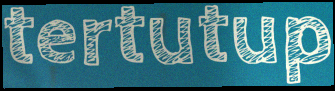
tertutup